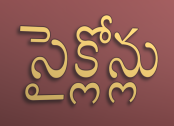
సైక్లోన్లు